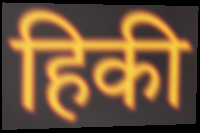
हिकी